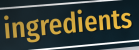
ingredients